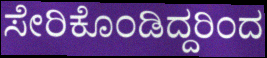
ಸೇರಿಕೊಂಡಿದ್ದರಿಂದ